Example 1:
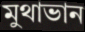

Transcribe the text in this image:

মুথাভান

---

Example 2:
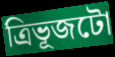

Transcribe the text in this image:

ত্ৰিভূজটো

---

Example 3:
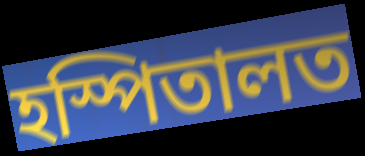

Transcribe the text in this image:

হস্পিতালত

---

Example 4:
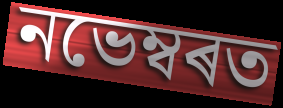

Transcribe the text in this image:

নভেম্বৰত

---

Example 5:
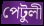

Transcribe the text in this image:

পেটুলী